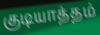
குடியாத்தம்